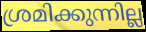
ശ്രമിക്കുന്നില്ല